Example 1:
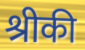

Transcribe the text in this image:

श्रीकी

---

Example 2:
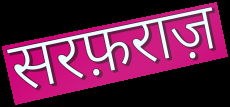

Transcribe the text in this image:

सरफ़राज़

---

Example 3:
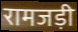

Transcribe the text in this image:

रामजड़ी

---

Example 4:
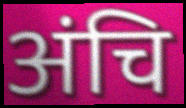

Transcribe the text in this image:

अंचि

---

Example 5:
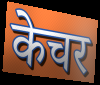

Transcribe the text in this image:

केचर